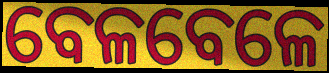
ବେଳବେଳେ